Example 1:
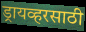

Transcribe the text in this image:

ड्रायव्हरसाठी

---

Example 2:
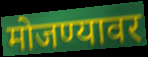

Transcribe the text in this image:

मोजण्यावर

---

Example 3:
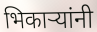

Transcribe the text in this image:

भिकाऱ्यांनी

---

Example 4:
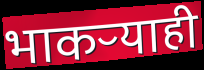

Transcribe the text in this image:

भाकऱ्याही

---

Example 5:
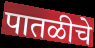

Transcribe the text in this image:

पातळीचे